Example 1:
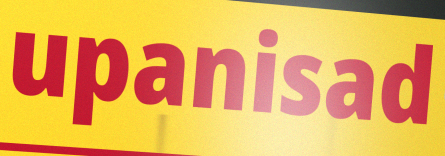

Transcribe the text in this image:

upanisad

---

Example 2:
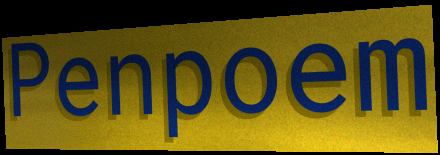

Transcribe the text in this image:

Penpoem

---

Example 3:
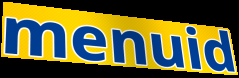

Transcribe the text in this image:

menuid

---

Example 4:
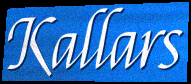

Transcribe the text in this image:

Kallars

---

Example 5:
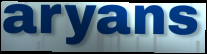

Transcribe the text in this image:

aryans